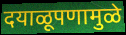
दयाळूपणामुळे